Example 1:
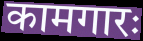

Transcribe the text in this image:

कामगारः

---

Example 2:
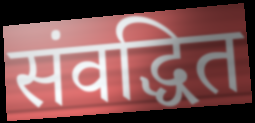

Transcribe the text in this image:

संवद्धित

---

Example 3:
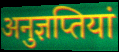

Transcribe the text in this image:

अनुज्ञप्तियां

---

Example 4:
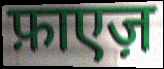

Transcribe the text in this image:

फ़ाएज़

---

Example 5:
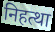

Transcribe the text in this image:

निहत्था